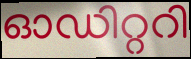
ഓഡിറ്ററി